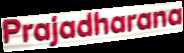
Prajadharana